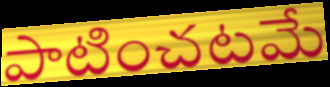
పాటించటమే